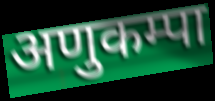
अणुकम्पा